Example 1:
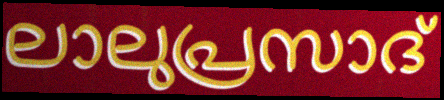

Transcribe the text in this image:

ലാലുപ്രസാദ്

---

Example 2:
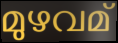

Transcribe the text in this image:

മുഴവമ്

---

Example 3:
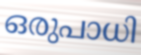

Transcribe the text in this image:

ഒരുപാധി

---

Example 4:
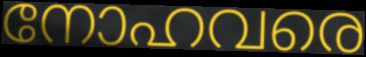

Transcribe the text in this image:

നോഹവരെ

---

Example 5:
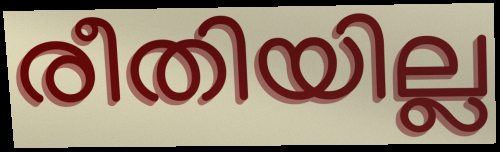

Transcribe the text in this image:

രീതിയില്ല